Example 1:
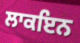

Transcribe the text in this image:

ਲਾਕਇਨ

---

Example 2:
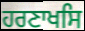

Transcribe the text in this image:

ਹਰਣਾਖਸਿ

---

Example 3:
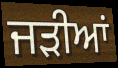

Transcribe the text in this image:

ਜੜੀਆਂ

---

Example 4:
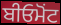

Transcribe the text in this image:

ਬੀਓਮੋਂਟ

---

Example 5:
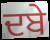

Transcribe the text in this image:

ਦਬੇ